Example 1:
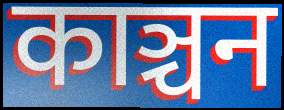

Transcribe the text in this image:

काञ्चन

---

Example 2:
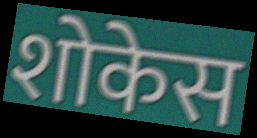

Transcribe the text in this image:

शोकेस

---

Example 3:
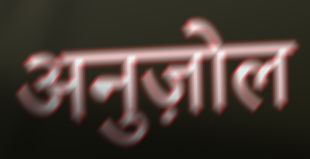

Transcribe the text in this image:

अनुज़ोल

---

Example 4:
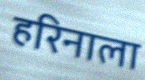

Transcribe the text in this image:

हरिनाला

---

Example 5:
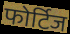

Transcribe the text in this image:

फोर्टिज